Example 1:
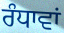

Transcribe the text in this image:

ਰੰਧਾਵਾਂ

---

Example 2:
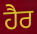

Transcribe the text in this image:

ਹੈਰ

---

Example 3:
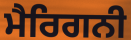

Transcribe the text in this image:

ਮੈਰਿਗਨੀ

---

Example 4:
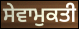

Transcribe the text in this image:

ਸੇਵਾਮੁਕਤੀ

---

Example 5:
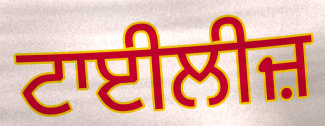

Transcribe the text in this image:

ਟਾਈਲੀਜ਼